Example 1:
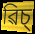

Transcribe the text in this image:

ৱিচ্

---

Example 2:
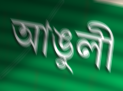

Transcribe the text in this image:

আঙুলী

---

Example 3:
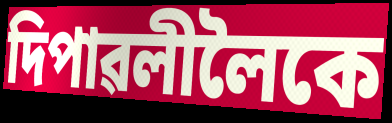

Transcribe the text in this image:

দিপাৱলীলৈকে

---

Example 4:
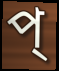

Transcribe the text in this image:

প্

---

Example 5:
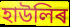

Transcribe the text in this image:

হাউলিৰ